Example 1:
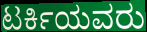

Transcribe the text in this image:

ಟರ್ಕಿಯವರು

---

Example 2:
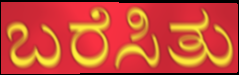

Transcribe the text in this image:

ಬರೆಸಿತು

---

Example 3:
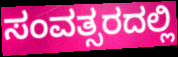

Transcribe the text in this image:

ಸಂವತ್ಸರದಲ್ಲಿ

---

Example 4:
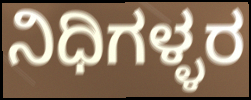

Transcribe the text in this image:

ನಿಧಿಗಳ್ಳರ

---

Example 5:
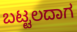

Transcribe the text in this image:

ಬಟ್ಟಲದಾಗ